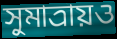
সুমাত্রায়ও